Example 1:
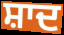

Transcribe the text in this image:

ਸ਼ਾਦ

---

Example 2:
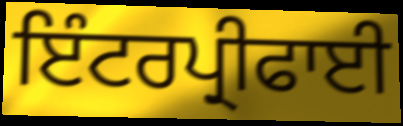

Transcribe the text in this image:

ਇੰਟਰਪ੍ਰੀਫਾਈ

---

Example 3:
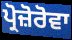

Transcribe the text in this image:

ਪ੍ਰੋਜ਼ੋਰੋਵਾ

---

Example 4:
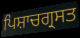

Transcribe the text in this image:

ਪਿਸ਼ਾਚਗ੍ਰਸਤ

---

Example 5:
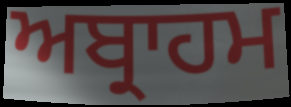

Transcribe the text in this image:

ਅਬ੍ਰਾਹਮ